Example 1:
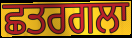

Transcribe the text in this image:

ਛਤਰਗਲਾ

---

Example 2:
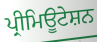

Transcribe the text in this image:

ਪ੍ਰੀਮਿਊਟੇਸ਼ਨ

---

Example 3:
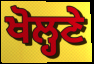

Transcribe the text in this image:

ਖੋਲ੍ਹਣੇ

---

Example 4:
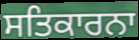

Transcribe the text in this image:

ਸਤਿਕਾਰਨਾ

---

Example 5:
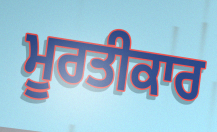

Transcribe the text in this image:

ਮੂਰਤੀਕਾਰ